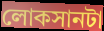
লোকসানটা